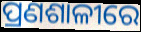
ପ୍ରଣଶାଳୀରେ